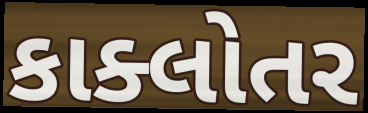
કાક્લોતર